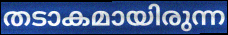
തടാകമായിരുന്ന